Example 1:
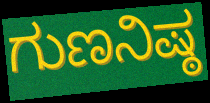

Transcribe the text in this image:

ಗುಣನಿಷ್ಠ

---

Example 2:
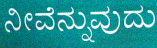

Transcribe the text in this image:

ನೀವೆನ್ನುವುದು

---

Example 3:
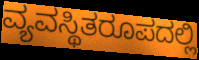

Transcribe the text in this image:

ವ್ಯವಸ್ಥಿತರೂಪದಲ್ಲಿ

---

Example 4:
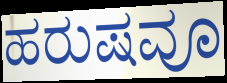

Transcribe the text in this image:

ಹರುಷವೂ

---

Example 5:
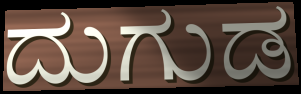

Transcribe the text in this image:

ದುಗುಡ